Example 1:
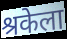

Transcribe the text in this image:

श्रकेला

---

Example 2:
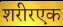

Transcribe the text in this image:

शरीरएक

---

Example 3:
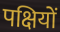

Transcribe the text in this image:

पक्षियों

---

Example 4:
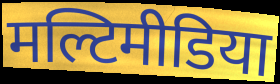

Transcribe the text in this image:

मल्टिमीडिया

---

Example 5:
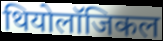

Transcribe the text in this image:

थियोलॉजिकल